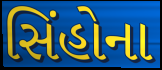
સિંહોના